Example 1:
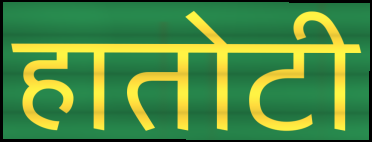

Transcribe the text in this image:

हातोटी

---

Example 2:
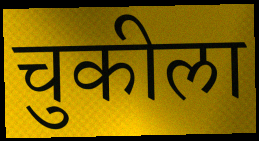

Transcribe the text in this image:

चुकीला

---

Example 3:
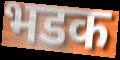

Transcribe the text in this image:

भडक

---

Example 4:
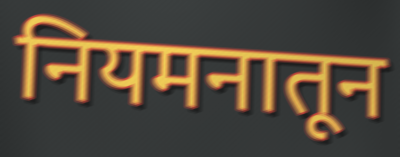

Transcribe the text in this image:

नियमनातून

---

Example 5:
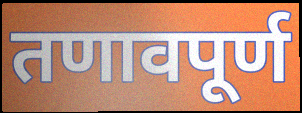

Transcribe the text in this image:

तणावपूर्ण